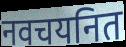
नवचयनित